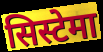
सिस्टेमा